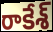
రాకేశ్